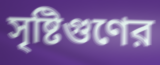
সৃষ্টিগুণের